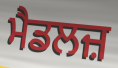
ਮੈਡਲਜ਼